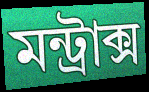
মন্ট্রাক্স